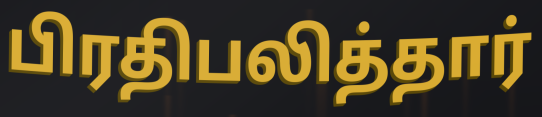
பிரதிபலித்தார்